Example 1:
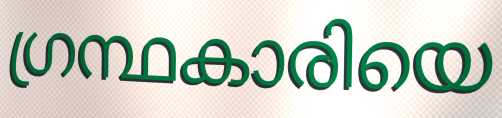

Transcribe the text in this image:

ഗ്രന്ഥകാരിയെ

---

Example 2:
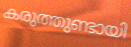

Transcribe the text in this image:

കരുത്തുണ്ടായി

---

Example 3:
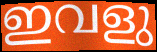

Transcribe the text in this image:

ഇവളു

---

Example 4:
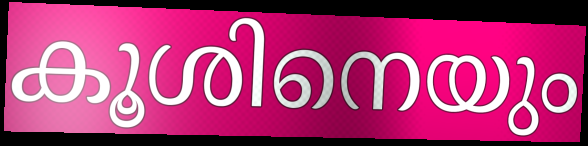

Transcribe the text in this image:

കൂശിനെയും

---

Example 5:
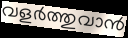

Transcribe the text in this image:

വളർത്തുവാൻ